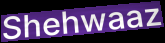
Shehwaaz